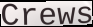
Crews